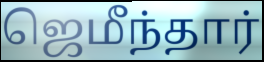
ஜெமீந்தார்